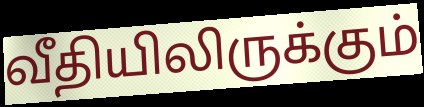
வீதியிலிருக்கும்